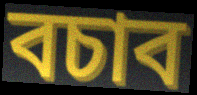
বচাব